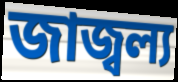
জাজ্বল্য